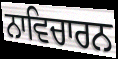
ਨਾਵਿਚਾਰਨ